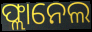
ଫ୍ଲାନେଲ